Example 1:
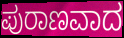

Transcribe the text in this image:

ಪುರಾಣವಾದ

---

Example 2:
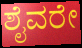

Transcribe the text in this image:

ಶೈವರೇ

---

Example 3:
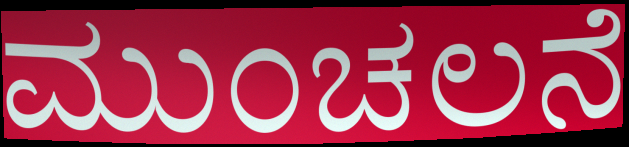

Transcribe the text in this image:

ಮುಂಚಲನೆ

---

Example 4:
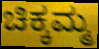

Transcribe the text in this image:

ಚಿಕ್ಕಮ್ಮ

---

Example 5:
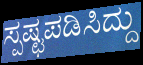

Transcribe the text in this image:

ಸ್ಪಷ್ಟಪಡಿಸಿದ್ದು